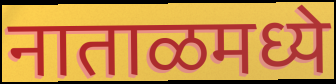
नाताळमध्ये